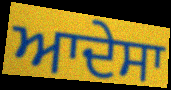
ਆਦੇਸਾ